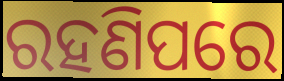
ରହଣିପରେ